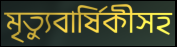
মৃত্যুবার্ষিকীসহ